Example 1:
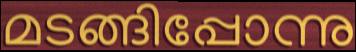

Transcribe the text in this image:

മടങ്ങിപ്പോന്നു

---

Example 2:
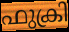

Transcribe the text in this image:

ഫുക്രി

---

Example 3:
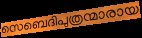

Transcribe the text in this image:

സെബെദിപുത്രന്മാരായ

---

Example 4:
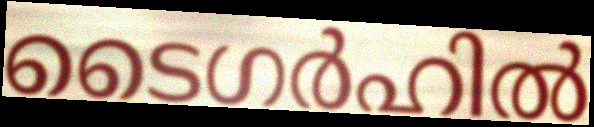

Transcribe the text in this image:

ടൈഗർഹിൽ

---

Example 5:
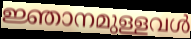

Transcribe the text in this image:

ജ്ഞാനമുള്ളവൾ